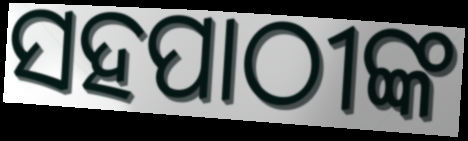
ସହପାଠୀଙ୍କ